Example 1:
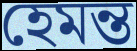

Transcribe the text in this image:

হেমন্ত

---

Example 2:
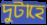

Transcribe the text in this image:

দুটাহে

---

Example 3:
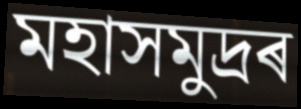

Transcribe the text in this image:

মহাসমুদ্ৰৰ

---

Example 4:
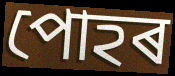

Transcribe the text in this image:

পোহৰ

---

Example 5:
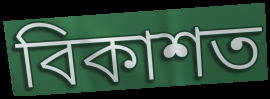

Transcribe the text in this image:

বিকাশত